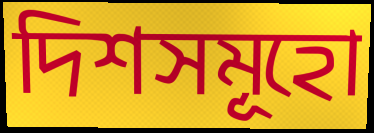
দিশসমূহো